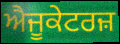
ਐਜੂਕੇਟਰਜ਼